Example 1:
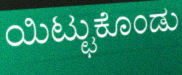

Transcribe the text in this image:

ಯಿಟ್ಟುಕೊಂಡು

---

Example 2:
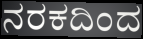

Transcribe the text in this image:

ನರಕದಿಂದ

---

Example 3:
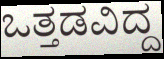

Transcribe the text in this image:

ಒತ್ತಡವಿದ್ದ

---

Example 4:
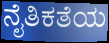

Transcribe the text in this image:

ನೈತಿಕತೆಯ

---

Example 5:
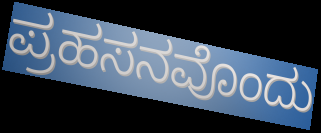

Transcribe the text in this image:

ಪ್ರಹಸನವೊಂದು